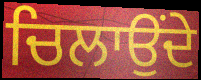
ਚਿਲਾਉਂਦੇ